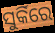
ସୁର୍କିରେ